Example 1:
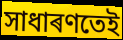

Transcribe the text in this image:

সাধাৰণতেই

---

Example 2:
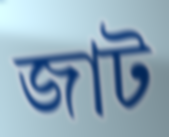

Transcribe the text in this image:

জাট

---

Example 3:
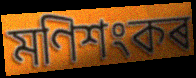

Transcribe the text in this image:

মণিশংকৰ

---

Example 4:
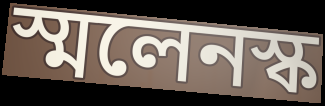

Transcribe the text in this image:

স্মলেনস্ক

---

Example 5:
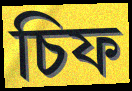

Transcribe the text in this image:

চিফ